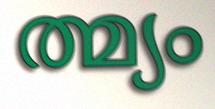
ത്മ്യം